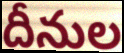
దీనుల